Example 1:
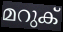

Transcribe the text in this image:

മറുക്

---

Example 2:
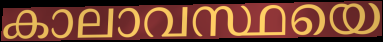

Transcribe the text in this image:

കാലാവസ്ഥയെ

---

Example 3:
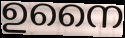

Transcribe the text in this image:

ഉനൈ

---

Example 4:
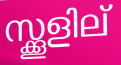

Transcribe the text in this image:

സ്ക്കൂളില്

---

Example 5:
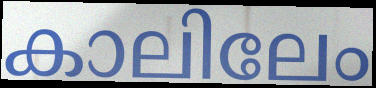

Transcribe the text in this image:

കാലിലേം